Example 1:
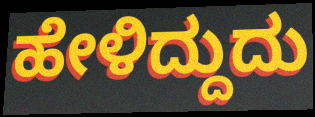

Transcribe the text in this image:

ಹೇಳಿದ್ದುದು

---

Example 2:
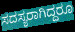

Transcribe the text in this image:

ಸದಸ್ಯರಾಗಿದ್ದರೂ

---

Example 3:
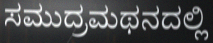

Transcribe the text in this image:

ಸಮುದ್ರಮಥನದಲ್ಲಿ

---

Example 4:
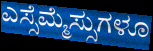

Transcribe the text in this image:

ಎಸ್ಸೆಮ್ಮೆಸ್ಸುಗಳೂ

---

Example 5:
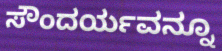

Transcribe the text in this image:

ಸೌಂದರ್ಯವನ್ನೂ